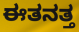
ಈತನತ್ತ